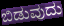
ಬಿಡುವುದು